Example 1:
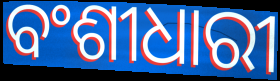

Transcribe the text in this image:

ବଂଶୀଧାରୀ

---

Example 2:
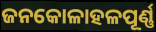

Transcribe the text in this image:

ଜନକୋଳାହଳପୂର୍ଣ୍ଣ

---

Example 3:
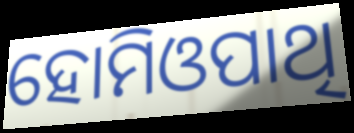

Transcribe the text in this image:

ହୋମିଓପାଥି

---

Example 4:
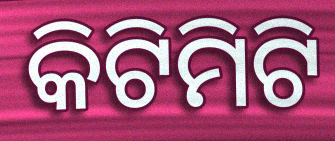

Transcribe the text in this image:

କିଟିମିଟି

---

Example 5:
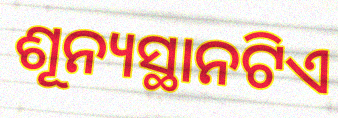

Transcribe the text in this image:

ଶୂନ୍ୟସ୍ଥାନଟିଏ